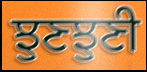
ਝੁਣਝੁਣੀ